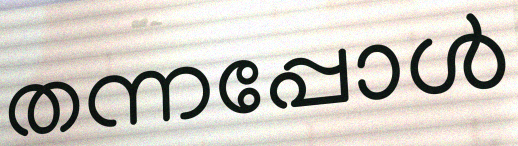
തന്നപ്പോൾ